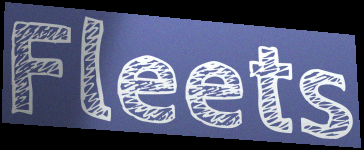
Fleets